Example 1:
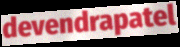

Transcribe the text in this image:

devendrapatel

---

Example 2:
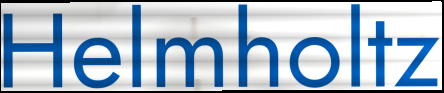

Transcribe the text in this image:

Helmholtz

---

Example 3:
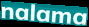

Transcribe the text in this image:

nalama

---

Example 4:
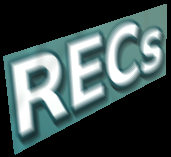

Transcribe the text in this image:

RECs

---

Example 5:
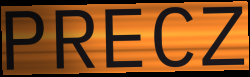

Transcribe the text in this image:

PRECZ